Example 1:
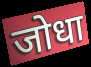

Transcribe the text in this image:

जोधा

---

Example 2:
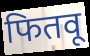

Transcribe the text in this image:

फितवू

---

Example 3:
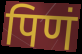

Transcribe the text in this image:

पिणं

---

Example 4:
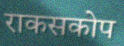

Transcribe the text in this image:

राकसकोप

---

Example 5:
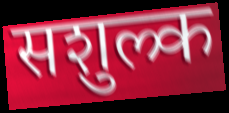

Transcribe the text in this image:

सशुल्क